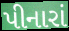
પીનારાં